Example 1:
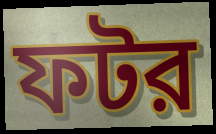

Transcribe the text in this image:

ফটর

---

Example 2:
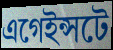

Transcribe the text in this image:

এগেইন্সটে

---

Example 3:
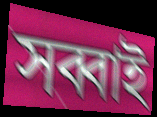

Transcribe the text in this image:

সব্বাই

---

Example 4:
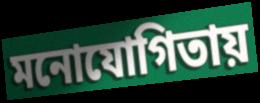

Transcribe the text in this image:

মনোযোগিতায়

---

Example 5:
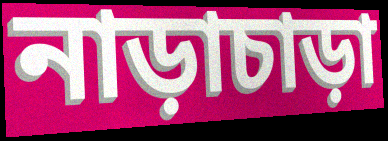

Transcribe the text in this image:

নাড়াচাড়া